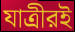
যাত্রীরই